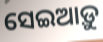
ସେଇଆଡ଼ୁ